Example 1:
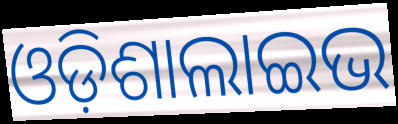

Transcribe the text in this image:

ଓଡ଼ିଶାଲାଇଭ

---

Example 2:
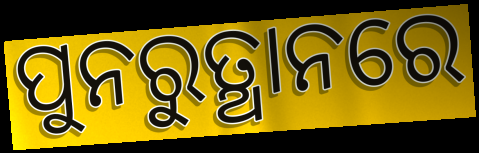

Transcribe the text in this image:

ପୁନରୁତ୍ଥାନରେ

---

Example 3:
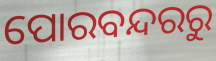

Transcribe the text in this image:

ପୋରବନ୍ଦରରୁ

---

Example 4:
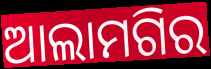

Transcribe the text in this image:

ଆଲାମଗିର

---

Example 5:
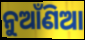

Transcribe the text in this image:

ନୁଆଁଣିଆ